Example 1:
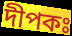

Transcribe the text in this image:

দীপকঃ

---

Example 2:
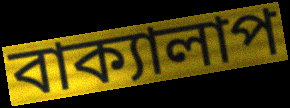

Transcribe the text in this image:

বাক্যালাপ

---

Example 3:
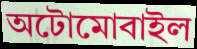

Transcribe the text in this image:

অটোমোবাইল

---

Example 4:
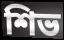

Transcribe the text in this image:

শিভ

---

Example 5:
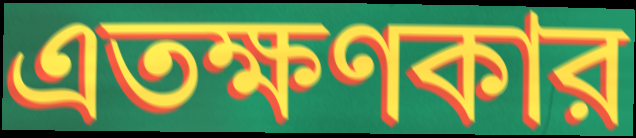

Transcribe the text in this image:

এতক্ষণকার